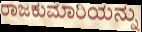
ರಾಜಕುಮಾರಿಯನ್ನು